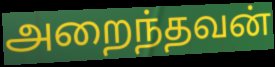
அறைந்தவன்